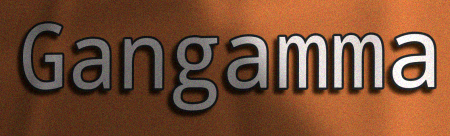
Gangamma